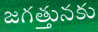
జగత్తునకు